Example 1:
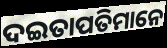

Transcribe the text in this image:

ଦଇତାପତିମାନେ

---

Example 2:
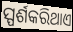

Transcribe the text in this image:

ସ୍ପର୍ଶକରିଥାଏ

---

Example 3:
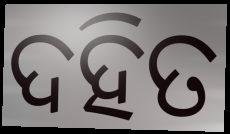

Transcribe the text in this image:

ଦହିତ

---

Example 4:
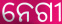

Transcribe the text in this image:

ନେଗୀ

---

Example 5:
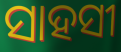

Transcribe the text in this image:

ସାହସୀ